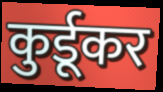
कुर्डूकर